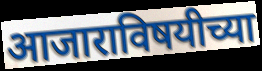
आजाराविषयीच्या